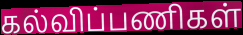
கல்விப்பணிகள்